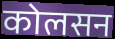
कोलसन